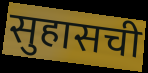
सुहासची